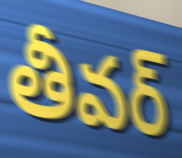
తీవర్